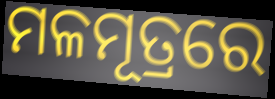
ମଳମୂତ୍ରରେ